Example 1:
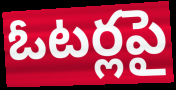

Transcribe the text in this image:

ఓటర్లపై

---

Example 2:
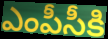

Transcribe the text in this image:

ఎంపీసీకి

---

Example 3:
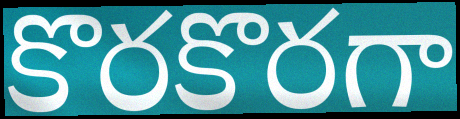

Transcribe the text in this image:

కొరకొరగా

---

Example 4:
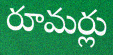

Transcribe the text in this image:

రూమర్లు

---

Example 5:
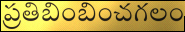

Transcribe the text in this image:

ప్రతిబింబించగలం